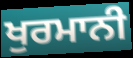
ਖੁਰਮਾਨੀ